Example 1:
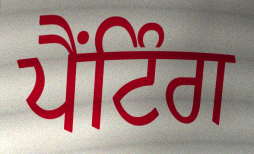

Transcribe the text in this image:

ਪੈਂਟਿੰਗ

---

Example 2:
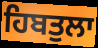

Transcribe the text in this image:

ਹਿਬਤੁਲਾ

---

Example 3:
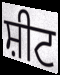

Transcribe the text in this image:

ਸ਼ੀਟ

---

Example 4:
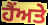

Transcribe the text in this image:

ਹੈਂਅਤੇ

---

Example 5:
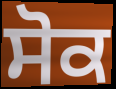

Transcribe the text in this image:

ਸੋਕ